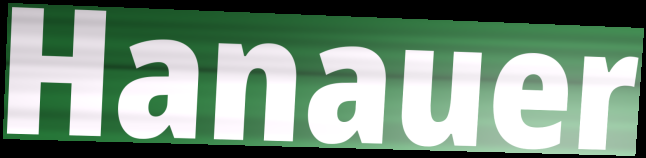
Hanauer